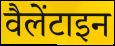
वैलेंटाइन